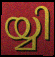
യ്യി